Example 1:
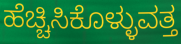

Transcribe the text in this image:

ಹೆಚ್ಚಿಸಿಕೊಳ್ಳುವತ್ತ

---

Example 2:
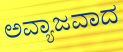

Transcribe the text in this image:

ಅವ್ಯಾಜವಾದ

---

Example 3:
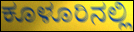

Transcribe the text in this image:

ಕೂಳೂರಿನಲ್ಲಿ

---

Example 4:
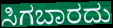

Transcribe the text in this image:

ಸಿಗಬಾರದು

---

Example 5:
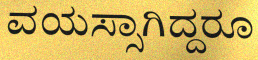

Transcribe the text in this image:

ವಯಸ್ಸಾಗಿದ್ದರೂ